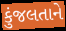
કુંજલતાને